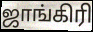
ஜாங்கிரி